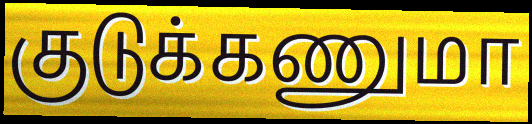
குடுக்கணுமா